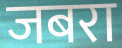
जबरा